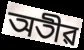
অতীৱ